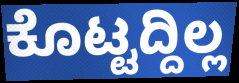
ಕೊಟ್ಟದ್ದಿಲ್ಲ